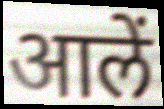
आलें